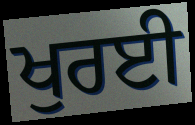
ਖੁਰਈ